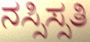
ನಸ್ಸಿಸ್ಸತಿ